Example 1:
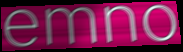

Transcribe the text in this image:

emno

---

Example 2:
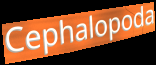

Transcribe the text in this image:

Cephalopoda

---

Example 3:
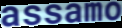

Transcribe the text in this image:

assamo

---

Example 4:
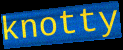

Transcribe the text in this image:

knotty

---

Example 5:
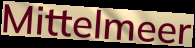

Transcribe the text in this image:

Mittelmeer